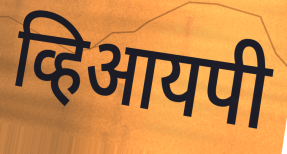
व्हिआयपी